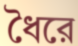
ধৈরে